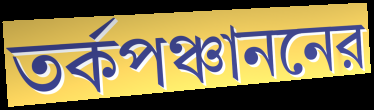
তর্কপঞ্চাননের